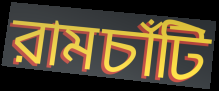
রামচাঁটি